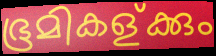
ഭൂമികള്ക്കും